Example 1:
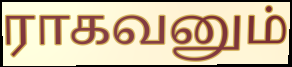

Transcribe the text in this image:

ராகவனும்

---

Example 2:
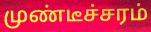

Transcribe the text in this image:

முண்டீச்சரம்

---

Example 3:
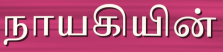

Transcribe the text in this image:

நாயகியின்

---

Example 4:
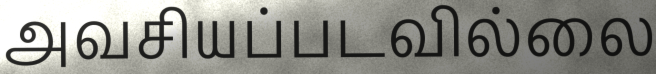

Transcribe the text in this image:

அவசியப்படவில்லை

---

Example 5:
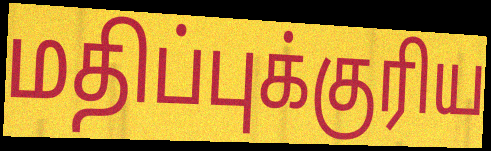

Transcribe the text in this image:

மதிப்புக்குரிய